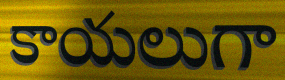
కాయలుగా